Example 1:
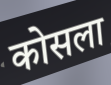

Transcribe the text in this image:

कोसला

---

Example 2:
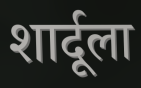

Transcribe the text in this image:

शार्दूला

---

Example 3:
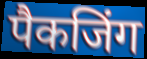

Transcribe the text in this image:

पैकजिंग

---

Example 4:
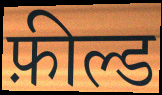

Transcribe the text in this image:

फ़ील्ड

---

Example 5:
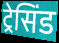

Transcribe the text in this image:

ट्रेसिंड